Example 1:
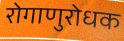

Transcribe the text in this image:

रोगाणुरोधक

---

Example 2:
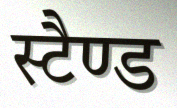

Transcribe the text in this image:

स्टैण्ड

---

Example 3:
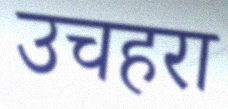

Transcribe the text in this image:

उचहरा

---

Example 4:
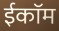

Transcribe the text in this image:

ईकॉम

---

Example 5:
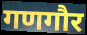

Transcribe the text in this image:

गणगौर